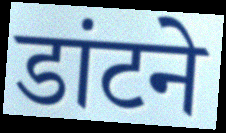
डांटने